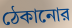
ঠেকানোর